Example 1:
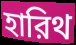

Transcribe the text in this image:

হারিথ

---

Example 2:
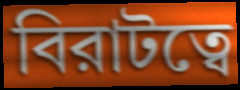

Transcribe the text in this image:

বিরাটত্বে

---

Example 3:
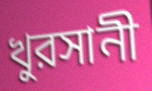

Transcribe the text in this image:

খুরসানী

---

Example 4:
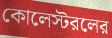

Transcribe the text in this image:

কোলেস্টরলের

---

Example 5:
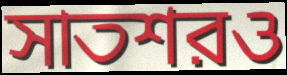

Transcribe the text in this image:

সাতশরও